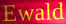
Ewald